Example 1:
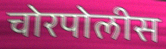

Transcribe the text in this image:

चोरपोलीस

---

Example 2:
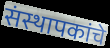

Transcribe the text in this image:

संस्थापकांचे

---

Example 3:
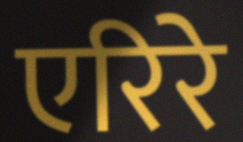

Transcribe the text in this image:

एरिरे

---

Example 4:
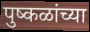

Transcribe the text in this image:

पुष्कळांच्या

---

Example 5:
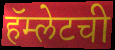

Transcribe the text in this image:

हॅम्लेटची